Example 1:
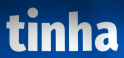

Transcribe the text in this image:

tinha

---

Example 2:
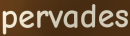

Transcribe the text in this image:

pervades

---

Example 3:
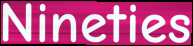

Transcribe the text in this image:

Nineties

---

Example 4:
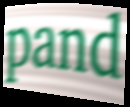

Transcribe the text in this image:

pand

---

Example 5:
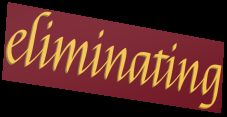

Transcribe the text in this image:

eliminating